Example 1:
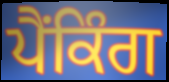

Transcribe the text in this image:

ਪੈਂਕਿੰਗ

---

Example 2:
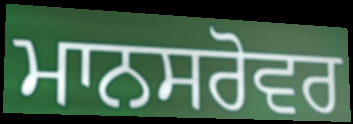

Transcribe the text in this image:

ਮਾਨਸਰੋਵਰ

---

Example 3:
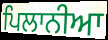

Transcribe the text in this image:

ਪਿਲਾਨੀਆ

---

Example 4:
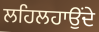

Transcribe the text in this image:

ਲਹਿਲਹਾਉਂਦੇ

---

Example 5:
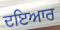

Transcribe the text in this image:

ਦਇਆਰ